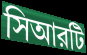
সিআরটি